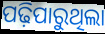
ପଢ଼ିପାରୁଥିଲା